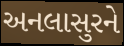
અનલાસુરને